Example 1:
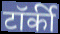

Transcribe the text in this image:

टॉर्की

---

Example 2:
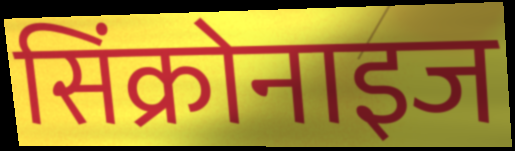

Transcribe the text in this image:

सिंक्रोनाइज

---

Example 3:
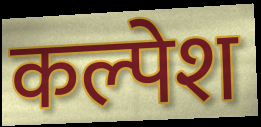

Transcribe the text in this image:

कल्पेश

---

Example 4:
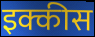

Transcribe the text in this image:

इक्कीस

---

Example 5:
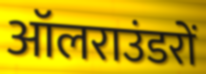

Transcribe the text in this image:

ऑलराउंडरों